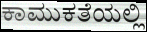
ಕಾಮುಕತೆಯಲ್ಲಿ